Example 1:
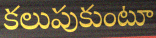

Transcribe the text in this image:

కలుపుకుంటూ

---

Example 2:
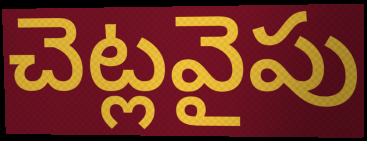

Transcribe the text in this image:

చెట్లవైపు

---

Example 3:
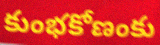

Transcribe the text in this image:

కుంభకోణంకు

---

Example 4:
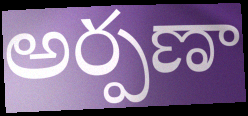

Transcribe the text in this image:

అర్పణా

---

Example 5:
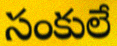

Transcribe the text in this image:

సంకులే